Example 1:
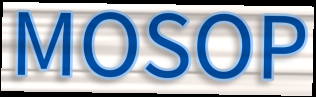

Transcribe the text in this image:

MOSOP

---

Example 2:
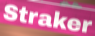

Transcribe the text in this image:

Straker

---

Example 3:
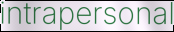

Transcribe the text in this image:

intrapersonal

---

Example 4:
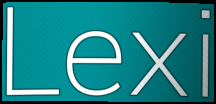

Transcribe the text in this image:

Lexi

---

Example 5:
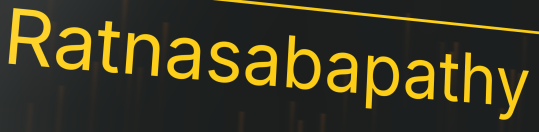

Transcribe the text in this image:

Ratnasabapathy